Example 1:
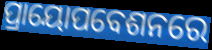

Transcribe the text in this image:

ପ୍ରାୟୋପବେଶନରେ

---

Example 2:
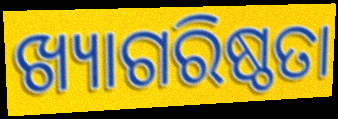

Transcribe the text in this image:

ଖ୍ୟାଗରିଷ୍ଠତା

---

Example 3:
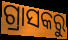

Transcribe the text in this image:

ଗ୍ରାସକରୁ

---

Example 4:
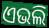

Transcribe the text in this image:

ଏଭଲି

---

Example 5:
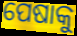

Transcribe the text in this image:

ପେଷାକୁ